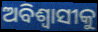
ଅବିଶ୍ୱାସୀକୁ